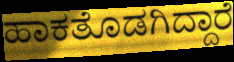
ಹಾಕತೊಡಗಿದ್ದಾರೆ